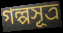
গল্পসূত্র